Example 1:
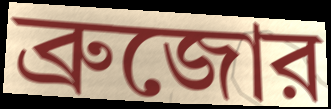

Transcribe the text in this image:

ব্রুজোর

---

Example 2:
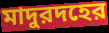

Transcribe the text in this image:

মাদুরদহের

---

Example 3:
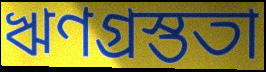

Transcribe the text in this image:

ঋণগ্রস্ততা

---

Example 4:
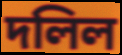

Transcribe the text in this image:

দলিল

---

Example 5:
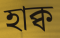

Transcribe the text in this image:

হাক্ব